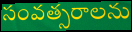
సంవత్సరాలను